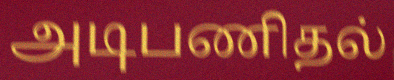
அடிபணிதல்